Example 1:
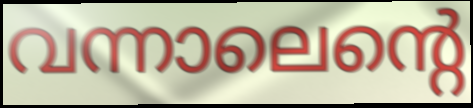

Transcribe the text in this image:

വന്നാലെന്റെ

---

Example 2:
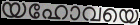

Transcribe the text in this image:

യഹോവയെ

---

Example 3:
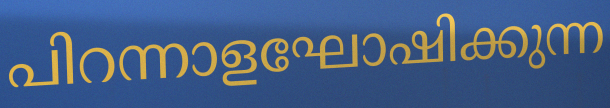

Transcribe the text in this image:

പിറന്നാളഘോഷിക്കുന്ന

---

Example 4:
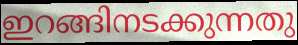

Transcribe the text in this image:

ഇറങ്ങിനടക്കുന്നതു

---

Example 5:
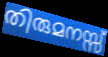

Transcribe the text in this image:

തിരുമനസ്സ്